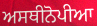
ਅਸਥੀਨੋਪੀਆ